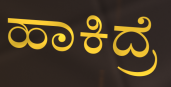
ಹಾಕಿದ್ರೆ